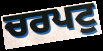
ਚਰਪਟੁ